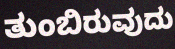
ತುಂಬಿರುವುದು